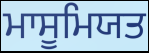
ਮਾਸੂਮਿਯਤ